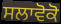
ਸਲਾਵੋਕੋ